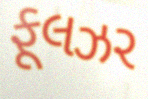
ફૂલઝર